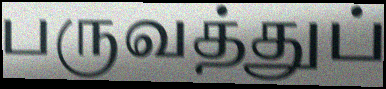
பருவத்துப்